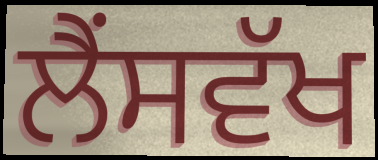
ਲੈਂਸਵੱਖ